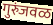
गुरुंजवळ